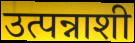
उत्पन्नाशी